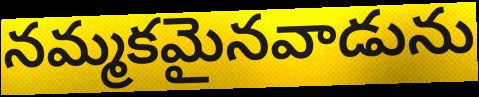
నమ్మకమైనవాడును